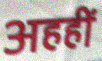
अहहीं